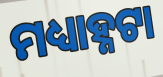
ମଧ୍ୟାହ୍ନଟା